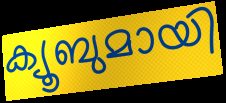
ക്യൂബുമായി